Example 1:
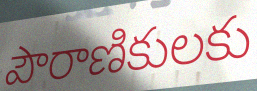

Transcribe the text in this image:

పౌరాణికులకు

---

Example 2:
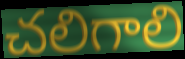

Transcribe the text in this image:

చలిగాలి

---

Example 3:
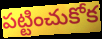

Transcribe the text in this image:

పట్టించుకోక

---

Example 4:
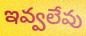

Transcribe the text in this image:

ఇవ్వలేవు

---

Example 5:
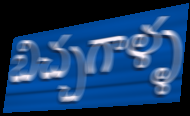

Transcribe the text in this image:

బిచ్చగాళ్ళ